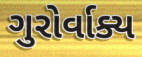
ગુરોર્વાક્ય